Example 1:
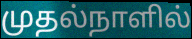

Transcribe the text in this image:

முதல்நாளில்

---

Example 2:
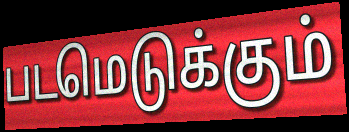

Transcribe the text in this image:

படமெடுக்கும்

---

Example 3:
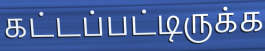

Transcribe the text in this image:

கட்டப்பட்டிருக்க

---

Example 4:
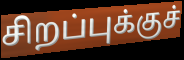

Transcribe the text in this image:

சிறப்புக்குச்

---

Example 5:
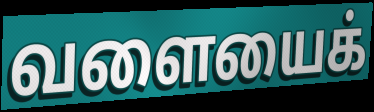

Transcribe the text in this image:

வளையைக்